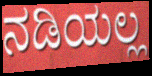
ನಡಿಯಲ್ಲ